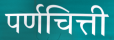
पर्णचित्ती